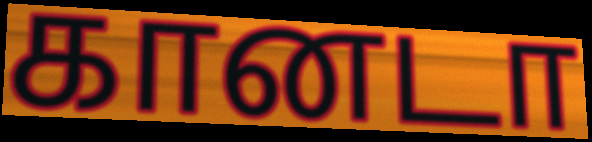
கானடா